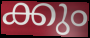
ക്കും